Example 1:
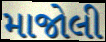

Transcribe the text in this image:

માજોલી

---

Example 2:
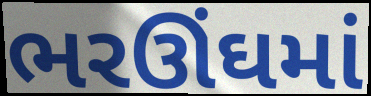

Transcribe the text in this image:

ભરઊંઘમાં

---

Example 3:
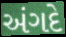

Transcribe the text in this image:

અંગદે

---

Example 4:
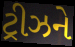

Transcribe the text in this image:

ટ્રીઝને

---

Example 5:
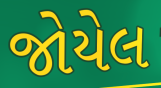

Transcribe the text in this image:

જોયેલ